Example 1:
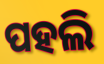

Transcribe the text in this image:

ପହଲି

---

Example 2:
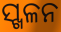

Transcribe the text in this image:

ସ୍ଖଳନ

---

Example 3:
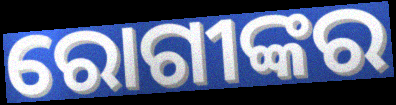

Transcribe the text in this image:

ରୋଗୀଙ୍କର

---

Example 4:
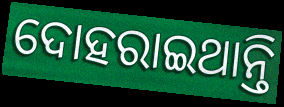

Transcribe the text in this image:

ଦୋହରାଇଥାନ୍ତି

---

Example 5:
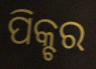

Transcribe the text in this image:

ପିକ୍ଚର